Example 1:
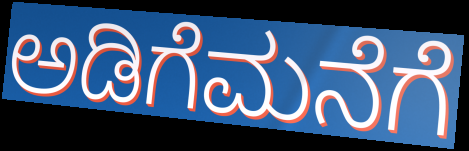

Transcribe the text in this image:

ಅಡಿಗೆಮನೆಗೆ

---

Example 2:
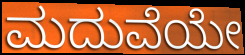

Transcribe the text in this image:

ಮದುವೆಯೇ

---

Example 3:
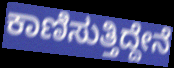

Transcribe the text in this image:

ಕಾಣಿಸುತ್ತಿದ್ದೇನೆ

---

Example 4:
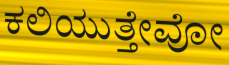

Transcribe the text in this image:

ಕಲಿಯುತ್ತೇವೋ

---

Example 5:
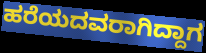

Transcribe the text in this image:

ಹರೆಯದವರಾಗಿದ್ದಾಗ